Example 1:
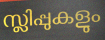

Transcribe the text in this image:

സ്ലിപ്പുകളും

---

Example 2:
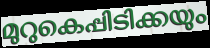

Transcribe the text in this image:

മുറുകെപ്പിടിക്കയും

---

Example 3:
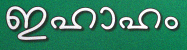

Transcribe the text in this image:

ഇഹാഹം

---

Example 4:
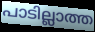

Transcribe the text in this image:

പാടില്ലാത്ത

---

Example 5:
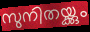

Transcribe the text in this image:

സുനിതയ്ക്കും